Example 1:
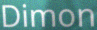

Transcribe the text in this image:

Dimon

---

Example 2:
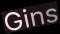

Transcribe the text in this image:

Gins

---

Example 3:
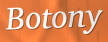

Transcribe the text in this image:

Botony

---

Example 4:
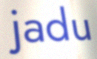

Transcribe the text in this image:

jadu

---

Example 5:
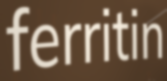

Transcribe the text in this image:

ferritin